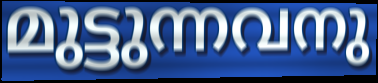
മുട്ടുന്നവനു